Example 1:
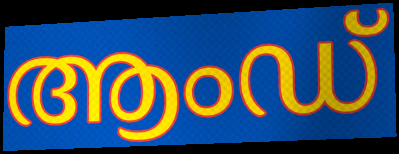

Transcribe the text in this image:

ആംഡ്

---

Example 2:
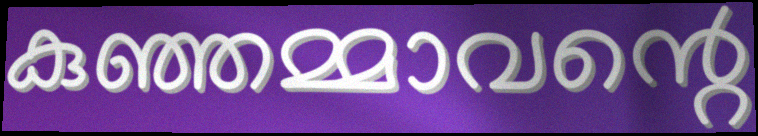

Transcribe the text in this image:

കുഞ്ഞമ്മാവന്റെ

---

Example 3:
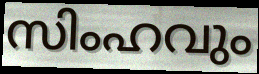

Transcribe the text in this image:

സിംഹവും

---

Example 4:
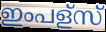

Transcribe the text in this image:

ഇംപള്സ്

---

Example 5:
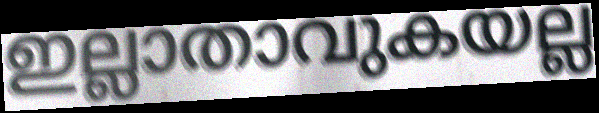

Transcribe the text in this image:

ഇല്ലാതാവുകയല്ല